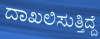
ದಾಖಲಿಸುತ್ತಿದ್ದೆ